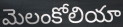
మెలంకోలియా